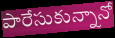
పారేసుకున్నానో